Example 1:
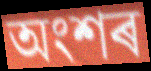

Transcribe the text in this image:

অংশৰ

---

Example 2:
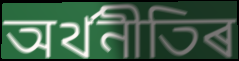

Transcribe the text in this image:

অৰ্থনীতিৰ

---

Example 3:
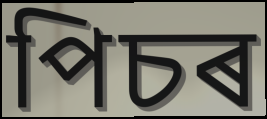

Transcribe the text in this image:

পিচৰ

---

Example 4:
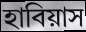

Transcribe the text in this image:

হাবিয়াস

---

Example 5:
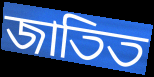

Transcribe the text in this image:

জাতিত